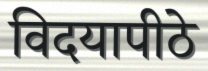
विदयापीठे